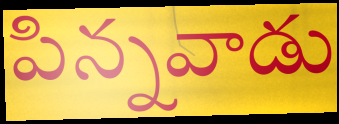
పిన్నవాడు